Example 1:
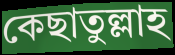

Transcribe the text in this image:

কেছাতুল্লাহ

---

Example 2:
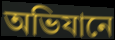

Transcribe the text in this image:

অভিযানে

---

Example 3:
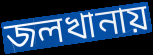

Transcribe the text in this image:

জলখানায়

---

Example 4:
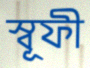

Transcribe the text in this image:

স্বূফী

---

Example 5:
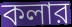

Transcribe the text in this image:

কলার